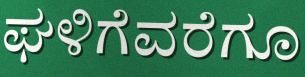
ಘಳಿಗೆವರೆಗೂ